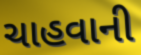
ચાહવાની